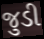
જુડી